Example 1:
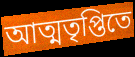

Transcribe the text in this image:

আত্মতৃপ্তিতে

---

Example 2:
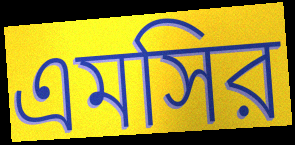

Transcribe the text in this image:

এমসির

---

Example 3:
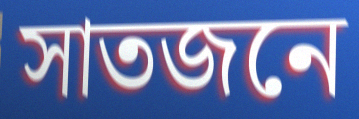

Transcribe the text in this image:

সাতজনে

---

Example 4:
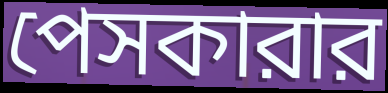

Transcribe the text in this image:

পেসকারার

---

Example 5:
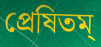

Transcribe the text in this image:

প্রেষিতম্